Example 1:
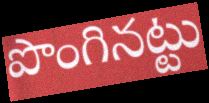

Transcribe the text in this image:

పొంగినట్టు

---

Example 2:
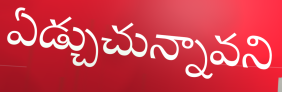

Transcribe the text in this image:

ఏడ్చుచున్నావని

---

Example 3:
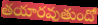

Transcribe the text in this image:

తయారవుతుందో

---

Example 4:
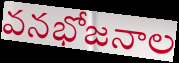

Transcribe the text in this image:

వనభోజనాల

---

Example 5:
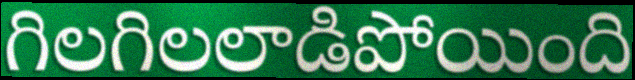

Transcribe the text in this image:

గిలగిలలాడిపోయింది